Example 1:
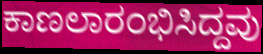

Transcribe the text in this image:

ಕಾಣಲಾರಂಭಿಸಿದ್ದವು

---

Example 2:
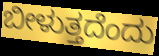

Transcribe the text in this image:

ಬೀಳುತ್ತದೆಂದು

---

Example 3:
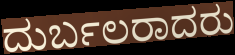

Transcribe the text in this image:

ದುರ್ಬಲರಾದರು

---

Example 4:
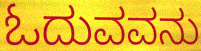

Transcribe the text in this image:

ಓದುವವನು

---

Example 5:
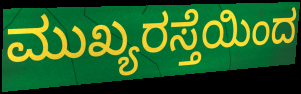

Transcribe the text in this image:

ಮುಖ್ಯರಸ್ತೆಯಿಂದ